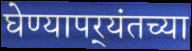
घेण्यापर्यंतच्या